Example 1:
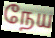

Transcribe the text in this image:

நேய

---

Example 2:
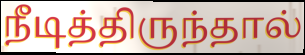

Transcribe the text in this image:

நீடித்திருந்தால்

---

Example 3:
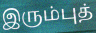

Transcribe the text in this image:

இரும்புத்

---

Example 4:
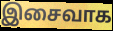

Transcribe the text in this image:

இசைவாக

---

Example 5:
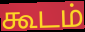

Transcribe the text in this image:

கூடம்